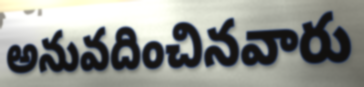
అనువదించినవారు